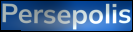
Persepolis